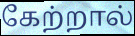
கேற்றால்